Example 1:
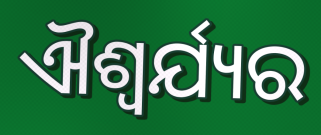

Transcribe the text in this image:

ଐଶ୍ଵର୍ଯ୍ୟର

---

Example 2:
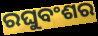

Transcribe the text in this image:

ରଘୁବଂଶର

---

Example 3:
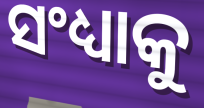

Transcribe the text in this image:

ସଂଧ୍ୟାକୁ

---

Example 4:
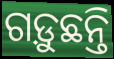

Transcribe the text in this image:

ଗଡ଼ୁଛନ୍ତି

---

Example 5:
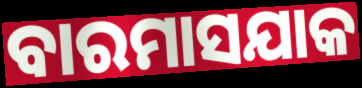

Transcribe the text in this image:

ବାରମାସଯାକ